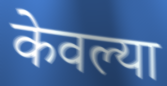
केवल्या